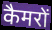
कैमरों